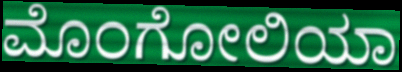
ಮೊಂಗೋಲಿಯಾ